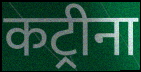
कट्रीना